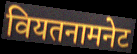
वियतनामनेट